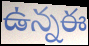
ఉన్నఈ